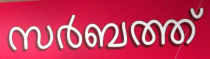
സർബത്ത്